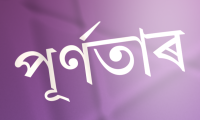
পূৰ্ণতাৰ